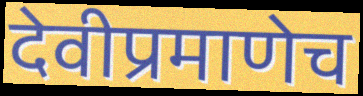
देवीप्रमाणेच